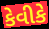
કેવીકે